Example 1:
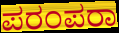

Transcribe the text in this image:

ಪರಂಪರಾ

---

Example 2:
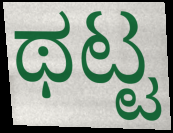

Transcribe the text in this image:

ಥಟ್ಟ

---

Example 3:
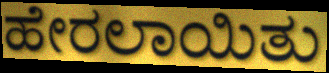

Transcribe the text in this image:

ಹೇರಲಾಯಿತು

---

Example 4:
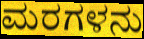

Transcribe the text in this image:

ಮರಗಳನು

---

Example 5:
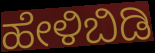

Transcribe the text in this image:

ಹೇಳಿಬಿಡಿ